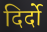
दिर्दो